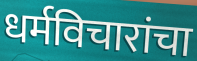
धर्मविचारांचा